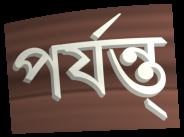
পর্যন্ত্